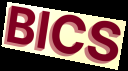
BICS